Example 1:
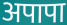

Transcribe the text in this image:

अपापा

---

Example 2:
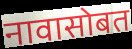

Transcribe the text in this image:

नावासोबत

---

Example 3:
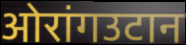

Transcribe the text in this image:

ओरांगउटान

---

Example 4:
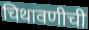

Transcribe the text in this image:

चिथावणीची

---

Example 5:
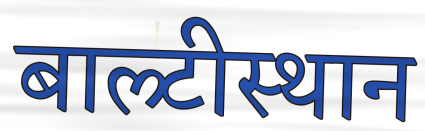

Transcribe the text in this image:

बाल्टीस्थान